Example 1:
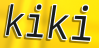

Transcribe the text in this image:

kiki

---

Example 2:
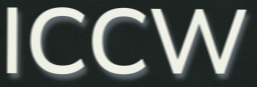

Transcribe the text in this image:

ICCW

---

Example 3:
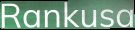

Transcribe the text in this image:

Rankusa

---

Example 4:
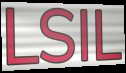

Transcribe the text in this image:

LSIL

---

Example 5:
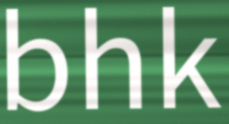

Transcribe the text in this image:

bhk